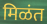
मिळंत